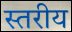
स्तरीय